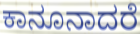
ಕಾನೂನಾದರೆ